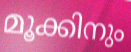
മൂക്കിനും